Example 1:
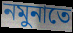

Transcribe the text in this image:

নমুনাতে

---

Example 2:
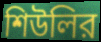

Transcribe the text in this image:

শিউলির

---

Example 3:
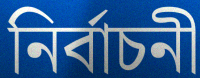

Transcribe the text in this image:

নির্বাচনী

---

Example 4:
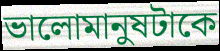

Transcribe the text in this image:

ভালোমানুষটাকে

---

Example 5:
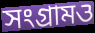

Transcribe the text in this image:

সংগ্রামও